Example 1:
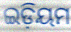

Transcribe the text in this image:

ଇଡ଼ିୟମ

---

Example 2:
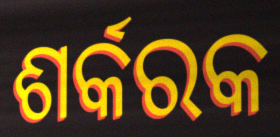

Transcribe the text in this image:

ଶର୍କରକ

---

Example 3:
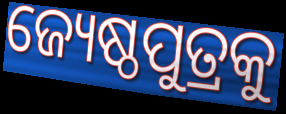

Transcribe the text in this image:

ଜ୍ୟେଷ୍ଠପୁତ୍ରକୁ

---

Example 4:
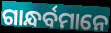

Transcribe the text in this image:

ଗାନ୍ଧର୍ବମାନେ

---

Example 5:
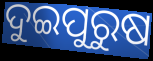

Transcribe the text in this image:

ଦୁଇପୁରୁଷ